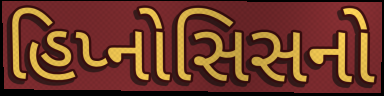
હિપ્નોસિસનો